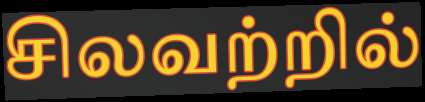
சிலவற்றில்